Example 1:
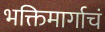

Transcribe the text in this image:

भक्तिमार्गाचं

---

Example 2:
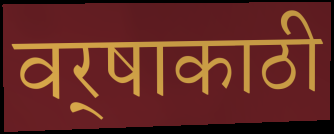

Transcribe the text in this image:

वर्षाकाठी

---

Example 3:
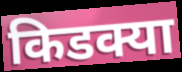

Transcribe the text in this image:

किडक्या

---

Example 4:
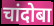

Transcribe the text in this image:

चांदोबा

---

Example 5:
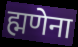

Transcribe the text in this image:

ह्मणेना